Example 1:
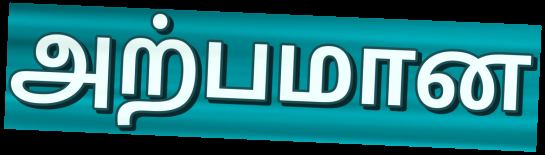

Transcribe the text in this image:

அற்பமான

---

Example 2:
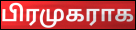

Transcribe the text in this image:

பிரமுகராக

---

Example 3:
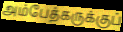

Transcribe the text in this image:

அம்பேத்கருக்குப்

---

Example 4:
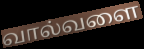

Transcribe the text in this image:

வால்வளை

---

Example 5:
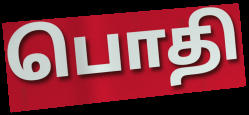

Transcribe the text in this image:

பொதி